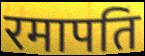
रमापति